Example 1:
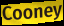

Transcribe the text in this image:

Cooney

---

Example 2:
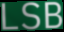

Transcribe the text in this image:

LSB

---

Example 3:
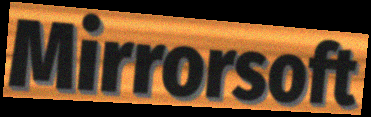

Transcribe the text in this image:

Mirrorsoft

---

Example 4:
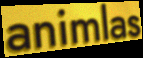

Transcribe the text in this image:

animlas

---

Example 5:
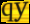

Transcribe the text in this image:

qy